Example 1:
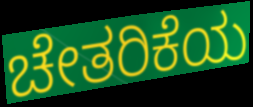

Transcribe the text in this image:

ಚೇತರಿಕೆಯ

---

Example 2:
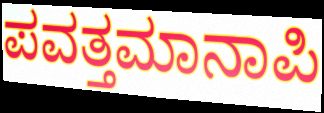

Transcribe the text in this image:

ಪವತ್ತಮಾನಾಪಿ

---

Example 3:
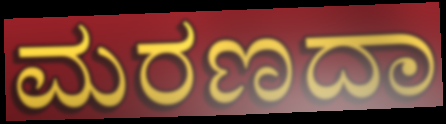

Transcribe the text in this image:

ಮರಣದಾ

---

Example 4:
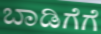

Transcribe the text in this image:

ಬಾಡಿಗೆಗೆ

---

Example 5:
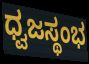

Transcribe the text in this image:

ಧ್ವಜಸ್ಥಂಭ